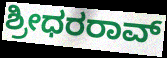
ಶ್ರೀಧರರಾವ್